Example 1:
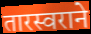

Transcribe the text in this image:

तारस्वराने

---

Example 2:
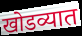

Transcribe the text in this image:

खोडव्यात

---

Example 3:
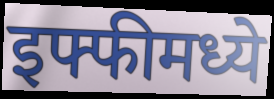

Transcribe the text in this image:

इफ्फीमध्ये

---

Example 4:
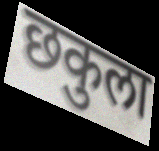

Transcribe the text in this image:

छकुला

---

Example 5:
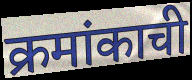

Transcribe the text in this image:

क्रमांकाची